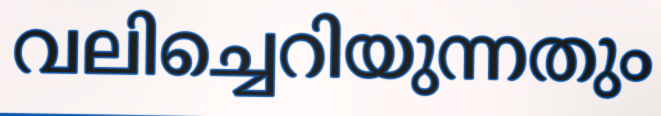
വലിച്ചെറിയുന്നതും